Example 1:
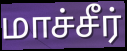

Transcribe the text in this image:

மாச்சீர்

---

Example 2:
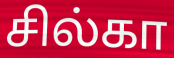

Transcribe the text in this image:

சில்கா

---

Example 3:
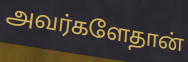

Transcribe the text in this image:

அவர்களேதான்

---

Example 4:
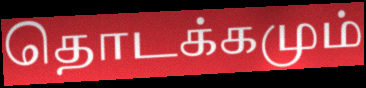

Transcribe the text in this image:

தொடக்கமும்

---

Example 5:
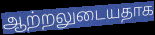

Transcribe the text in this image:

ஆற்றலுடையதாக